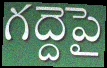
గద్దెపై